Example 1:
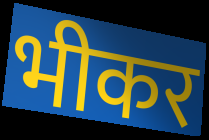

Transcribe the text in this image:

भीकर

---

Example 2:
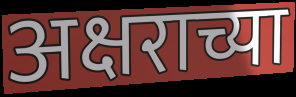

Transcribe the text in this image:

अक्षराच्या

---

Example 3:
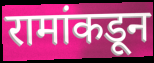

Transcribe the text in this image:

रामांकडून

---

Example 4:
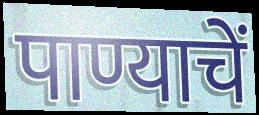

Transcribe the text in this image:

पाण्याचें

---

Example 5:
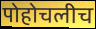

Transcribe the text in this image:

पोहोचलीच